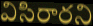
విసిరారని